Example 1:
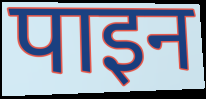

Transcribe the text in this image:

पाइन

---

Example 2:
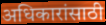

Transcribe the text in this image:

अधिकारांसाठी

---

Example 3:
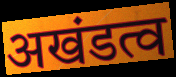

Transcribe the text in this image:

अखंडत्व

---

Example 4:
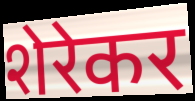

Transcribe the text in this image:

शेरेकर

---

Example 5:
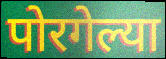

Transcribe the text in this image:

पोरगेल्या